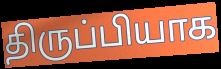
திருப்பியாக